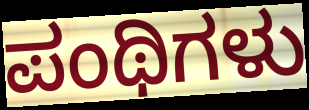
ಪಂಥಿಗಳು